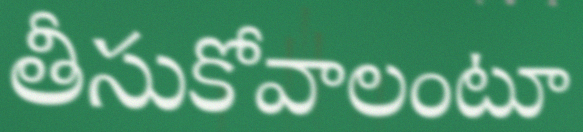
తీసుకోవాలంటూ